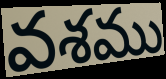
వశము